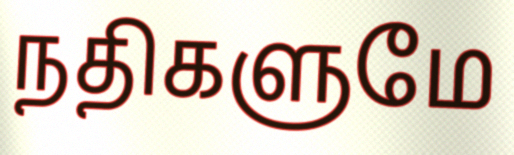
நதிகளுமே